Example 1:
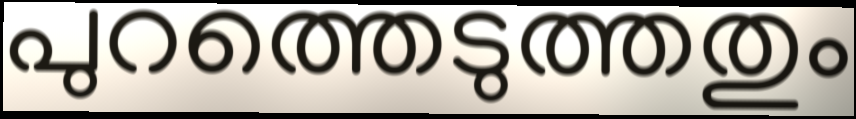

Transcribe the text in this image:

പുറത്തെടുത്തതും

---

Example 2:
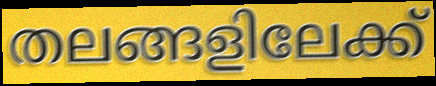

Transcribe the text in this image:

തലങ്ങളിലേക്ക്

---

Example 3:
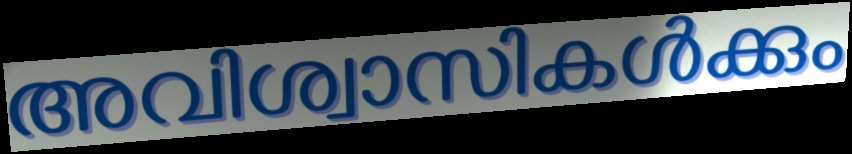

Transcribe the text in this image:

അവിശ്വാസികൾക്കും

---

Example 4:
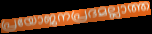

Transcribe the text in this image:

പ്രയോജനപ്രദമല്ലാത്ത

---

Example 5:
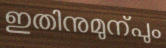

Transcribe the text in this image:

ഇതിനുമുന്പും